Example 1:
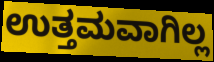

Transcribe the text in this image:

ಉತ್ತಮವಾಗಿಲ್ಲ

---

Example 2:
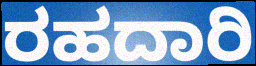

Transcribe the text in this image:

ರಹದಾರಿ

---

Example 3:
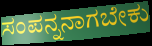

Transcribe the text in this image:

ಸಂಪನ್ನನಾಗಬೇಕು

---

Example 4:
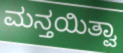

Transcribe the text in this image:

ಮನ್ತಯಿತ್ವಾ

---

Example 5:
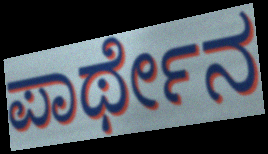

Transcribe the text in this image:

ಪಾರ್ಥೇನ